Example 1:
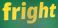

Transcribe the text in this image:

fright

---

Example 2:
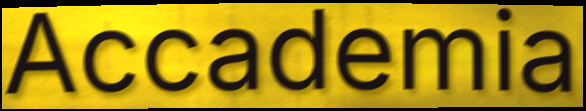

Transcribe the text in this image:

Accademia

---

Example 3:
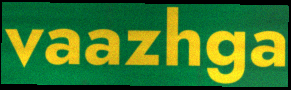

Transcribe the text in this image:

vaazhga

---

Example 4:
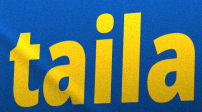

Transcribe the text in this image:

taila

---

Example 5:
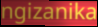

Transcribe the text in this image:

ngizanika